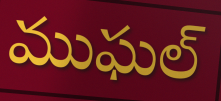
ముఘల్